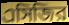
এসিজির